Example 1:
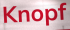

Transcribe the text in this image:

Knopf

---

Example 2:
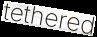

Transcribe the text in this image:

tethered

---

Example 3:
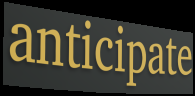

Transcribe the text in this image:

anticipate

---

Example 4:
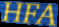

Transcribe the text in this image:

HFA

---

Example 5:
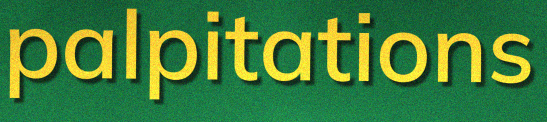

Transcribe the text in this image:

palpitations